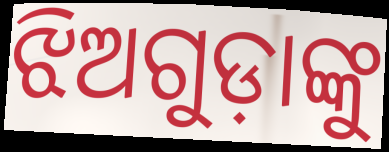
ଝିଅଗୁଡ଼ାଙ୍କୁ